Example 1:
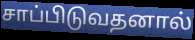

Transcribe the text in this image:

சாப்பிடுவதனால்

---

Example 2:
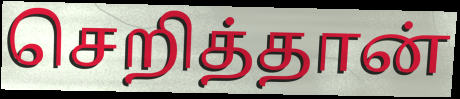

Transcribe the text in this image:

செறித்தான்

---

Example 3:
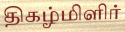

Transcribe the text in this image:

திகழ்மிளிர்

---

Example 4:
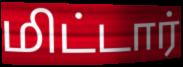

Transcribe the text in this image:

மிட்டார்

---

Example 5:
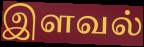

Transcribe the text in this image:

இளவல்